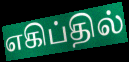
எகிப்தில்